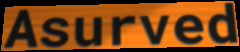
Asurved